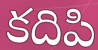
కదిపి